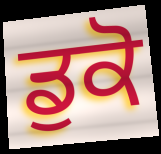
ਡੁਕੋ